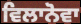
ਵਿਲਾਨੋਵਾ